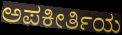
ಅಪಕೀರ್ತಿಯ